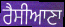
ਰੈਸੀਆਣਾ